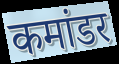
कमांडर